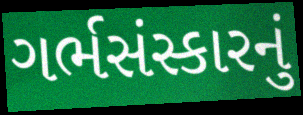
ગર્ભસંસ્કારનું